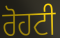
ਰੋਹਟੀ